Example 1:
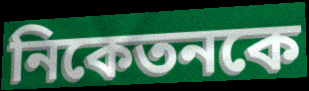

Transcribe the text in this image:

নিকেতনকে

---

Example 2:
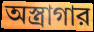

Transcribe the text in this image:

অস্ত্রাগার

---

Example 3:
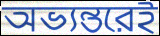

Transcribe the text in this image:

অভ্যন্তরেই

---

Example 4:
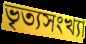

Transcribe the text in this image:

ভৃত্যসংখ্যা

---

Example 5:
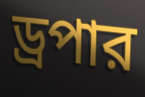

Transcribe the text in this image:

ড্রপার